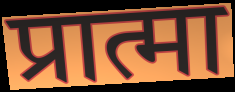
प्रात्मा